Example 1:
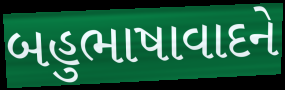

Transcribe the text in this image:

બહુભાષાવાદને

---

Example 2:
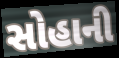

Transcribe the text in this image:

સોહાની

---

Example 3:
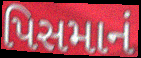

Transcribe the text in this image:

પિસમાનં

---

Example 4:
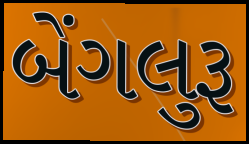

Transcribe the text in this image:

બેંગલુરૂ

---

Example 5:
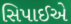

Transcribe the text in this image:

સિપાઈએ